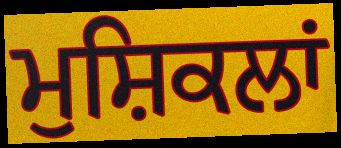
ਮੁਸ਼ਿਕਲਾਂ